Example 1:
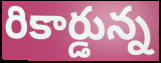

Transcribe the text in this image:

రికార్డున్న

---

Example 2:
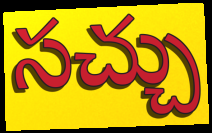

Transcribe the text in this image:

సచ్చు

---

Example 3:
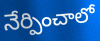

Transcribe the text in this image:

నేర్పించాలో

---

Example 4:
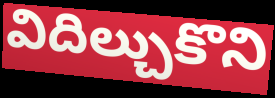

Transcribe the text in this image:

విదిల్చుకొని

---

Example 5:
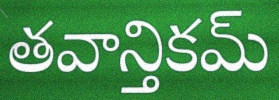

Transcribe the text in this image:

తవాన్తికమ్